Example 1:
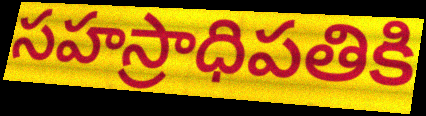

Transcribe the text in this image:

సహస్రాధిపతికి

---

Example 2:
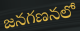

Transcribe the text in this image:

జనగణనలో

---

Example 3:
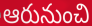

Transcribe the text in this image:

ఆరునుంచి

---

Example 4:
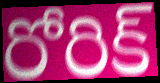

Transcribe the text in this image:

రోరిక్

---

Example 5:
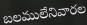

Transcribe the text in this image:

బలములేనివారల